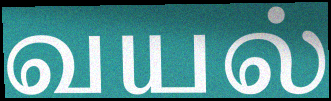
வயல்